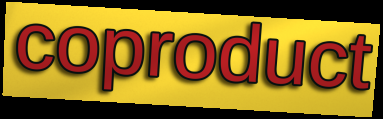
coproduct